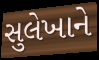
સુલેખાને